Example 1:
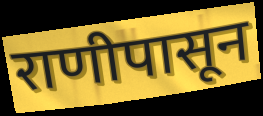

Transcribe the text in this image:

राणीपासून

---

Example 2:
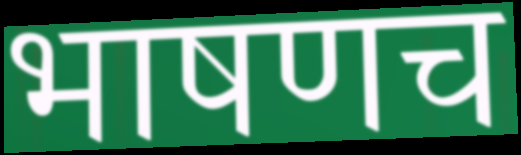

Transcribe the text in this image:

भाषणच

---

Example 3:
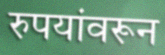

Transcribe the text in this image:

रुपयांवरून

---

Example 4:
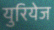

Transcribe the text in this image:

युरियेज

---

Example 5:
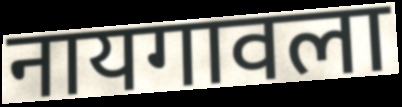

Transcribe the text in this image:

नायगावला